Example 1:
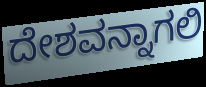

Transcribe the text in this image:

ದೇಶವನ್ನಾಗಲಿ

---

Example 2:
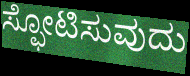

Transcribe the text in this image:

ಸ್ಫೋಟಿಸುವುದು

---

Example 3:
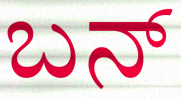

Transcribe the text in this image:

ಬನ್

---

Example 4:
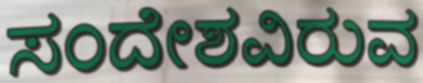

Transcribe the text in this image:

ಸಂದೇಶವಿರುವ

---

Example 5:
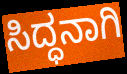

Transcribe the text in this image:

ಸಿದ್ಧನಾಗಿ